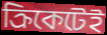
ক্রিকেটেই